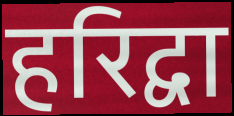
हरिद्वा